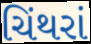
ચિંથરાં